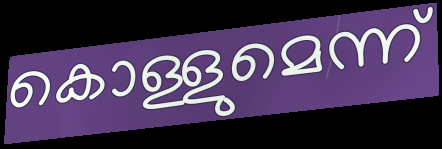
കൊള്ളുമെന്ന്